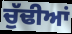
ਚੁੱਢੀਆਂ